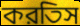
করতিস